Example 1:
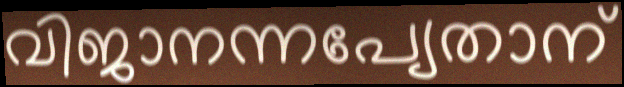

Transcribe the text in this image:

വിജാനന്നപ്യേതാന്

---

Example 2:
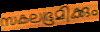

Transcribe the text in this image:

സകലഭൂമിക്കും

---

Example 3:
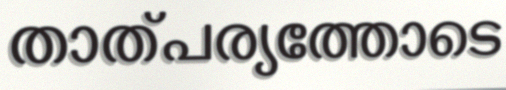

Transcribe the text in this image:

താത്പര്യത്തോടെ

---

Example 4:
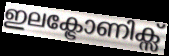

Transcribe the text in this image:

ഇലക്ട്രോണിക്സ്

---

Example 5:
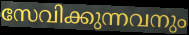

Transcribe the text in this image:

സേവിക്കുന്നവനും